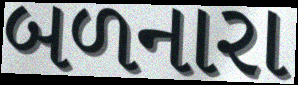
બળનારા